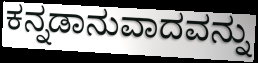
ಕನ್ನಡಾನುವಾದವನ್ನು